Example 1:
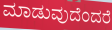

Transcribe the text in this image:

ಮಾಡುವುದೆಂದರೆ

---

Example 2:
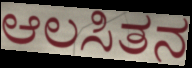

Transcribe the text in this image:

ಆಲಸಿತನ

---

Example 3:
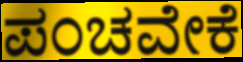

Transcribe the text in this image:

ಪಂಚವೇಕೆ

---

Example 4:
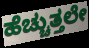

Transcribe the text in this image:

ಹೆಚ್ಚುತ್ತಲೇ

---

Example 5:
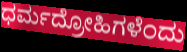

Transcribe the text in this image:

ಧರ್ಮದ್ರೋಹಿಗಳೆಂದು